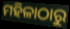
ମହିଳାଠାରୁ